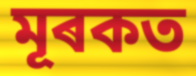
মূৰকত